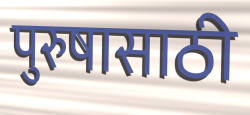
पुरुषासाठी